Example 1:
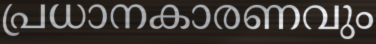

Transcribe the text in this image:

പ്രധാനകാരണവും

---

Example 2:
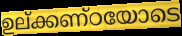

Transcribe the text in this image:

ഉല്ക്കണ്ഠയോടെ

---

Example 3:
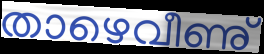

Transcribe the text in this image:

താഴെവീണു്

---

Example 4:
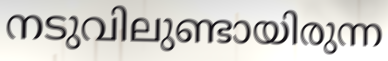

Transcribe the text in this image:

നടുവിലുണ്ടായിരുന്ന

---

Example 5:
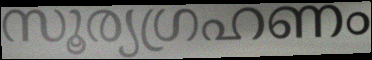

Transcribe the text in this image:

സൂര്യഗ്രഹണം